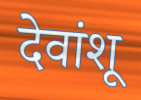
देवांशू